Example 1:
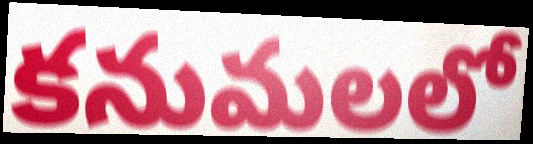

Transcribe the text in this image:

కనుమలలో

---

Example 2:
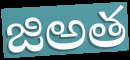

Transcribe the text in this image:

జిఅత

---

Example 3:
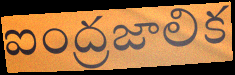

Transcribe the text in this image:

ఐంద్రజాలిక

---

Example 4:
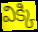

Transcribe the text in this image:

విక్కి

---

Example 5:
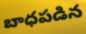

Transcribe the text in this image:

బాధపడిన